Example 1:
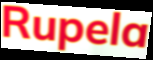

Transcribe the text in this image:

Rupela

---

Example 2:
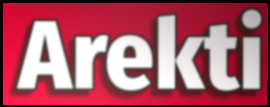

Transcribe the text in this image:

Arekti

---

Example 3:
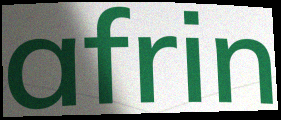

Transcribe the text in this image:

afrin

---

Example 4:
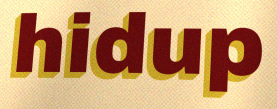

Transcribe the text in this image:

hidup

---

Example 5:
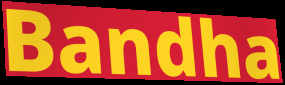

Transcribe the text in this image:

Bandha